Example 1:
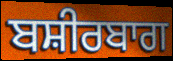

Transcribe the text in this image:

ਬਸ਼ੀਰਬਾਗ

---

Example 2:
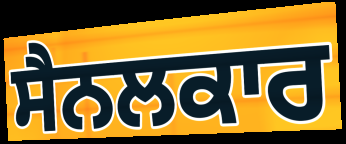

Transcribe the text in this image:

ਸੈਨਲਕਾਰ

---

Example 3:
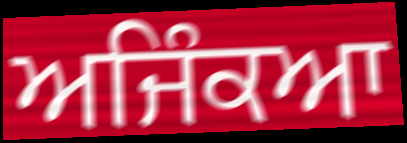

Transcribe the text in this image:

ਅਜਿੰਕਆ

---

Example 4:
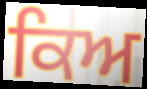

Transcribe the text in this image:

ਕਿਅ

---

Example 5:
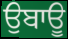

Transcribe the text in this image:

ਉਬਾਊ